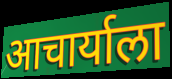
आचार्याला